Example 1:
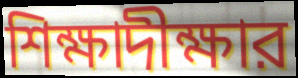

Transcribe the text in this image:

শিক্ষাদীক্ষার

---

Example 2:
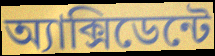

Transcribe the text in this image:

অ্যাক্সিডেন্টে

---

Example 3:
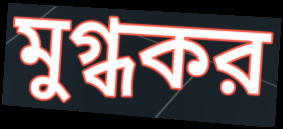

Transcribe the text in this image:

মুগ্ধকর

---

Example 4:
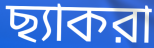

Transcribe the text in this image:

ছ্যাকরা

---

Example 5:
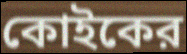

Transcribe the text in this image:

কোইকের